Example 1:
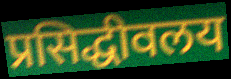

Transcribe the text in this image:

प्रसिद्धीवलय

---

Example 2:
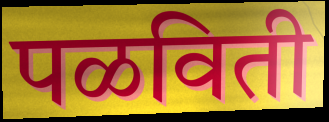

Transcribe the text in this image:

पळविती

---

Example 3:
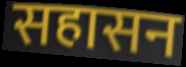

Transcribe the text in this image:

सहासन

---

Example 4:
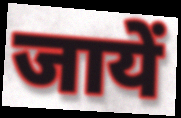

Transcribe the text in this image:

जायें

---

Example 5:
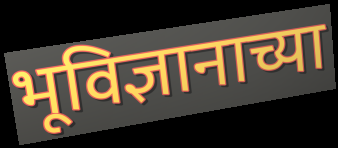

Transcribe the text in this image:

भूविज्ञानाच्या